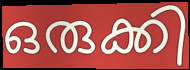
ഒരുക്കി